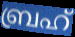
ബ്രഹ്